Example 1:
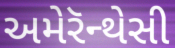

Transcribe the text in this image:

અમેરૅન્થેસી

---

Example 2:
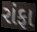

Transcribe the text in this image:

રાંફા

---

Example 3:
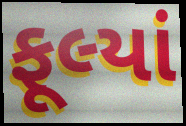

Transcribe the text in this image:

ફૂલ્યાં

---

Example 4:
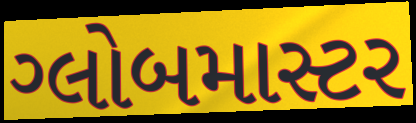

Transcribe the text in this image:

ગ્લોબમાસ્ટર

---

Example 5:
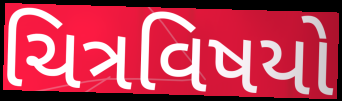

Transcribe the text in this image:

ચિત્રવિષયો